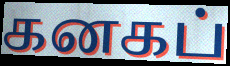
கனகப்